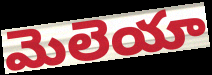
మెలెయా